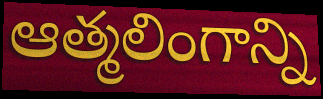
ఆత్మలింగాన్ని